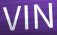
VIN